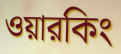
ওয়ারকিং